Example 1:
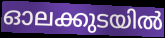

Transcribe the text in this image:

ഓലക്കുടയിൽ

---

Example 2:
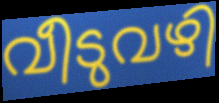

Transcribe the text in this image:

വീടുവഴി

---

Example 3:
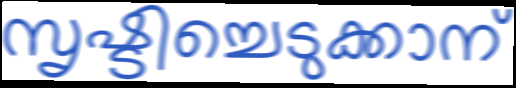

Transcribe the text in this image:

സൃഷ്ടിച്ചെടുക്കാന്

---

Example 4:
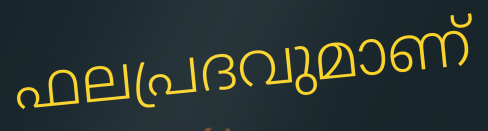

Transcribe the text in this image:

ഫലപ്രദവുമാണ്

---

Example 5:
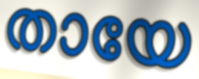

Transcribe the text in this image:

തായേ